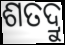
ଶତଦ୍ରୁ